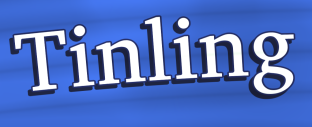
Tinling